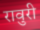
रावुरी